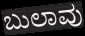
ಬುಲಾವು